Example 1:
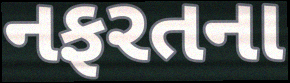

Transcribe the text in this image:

નફરતના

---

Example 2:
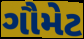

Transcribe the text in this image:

ગૌમેટ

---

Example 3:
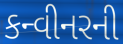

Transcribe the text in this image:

કન્વીનરની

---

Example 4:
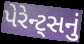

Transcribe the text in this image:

પેરેન્ટ્સનું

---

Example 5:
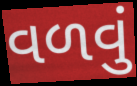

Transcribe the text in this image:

વળવું